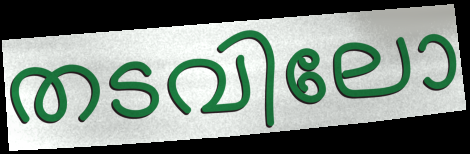
തടവിലോ